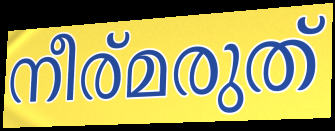
നീര്മരുത്